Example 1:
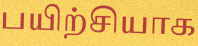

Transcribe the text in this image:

பயிற்சியாக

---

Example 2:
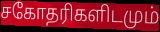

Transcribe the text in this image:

சகோதரிகளிடமும்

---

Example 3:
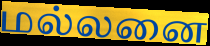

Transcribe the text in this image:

மல்லனை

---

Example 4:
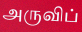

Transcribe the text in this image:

அருவிப்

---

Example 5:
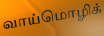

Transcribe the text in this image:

வாய்மொழிக்